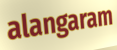
alangaram